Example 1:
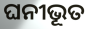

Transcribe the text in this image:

ଘନୀଭୂତ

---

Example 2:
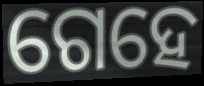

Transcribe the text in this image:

ଗେହେ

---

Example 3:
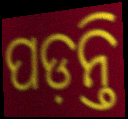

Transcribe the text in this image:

ପଡ଼ନ୍ତି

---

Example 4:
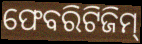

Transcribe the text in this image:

ଫେବରିଟିଜିମ୍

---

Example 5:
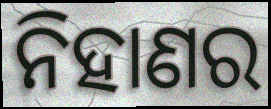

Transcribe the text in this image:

ନିହାଣର